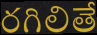
రగిలితే